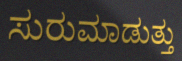
ಸುರುಮಾಡುತ್ತು